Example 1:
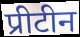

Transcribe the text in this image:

प्रीटीन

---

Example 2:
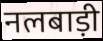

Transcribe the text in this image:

नलबाड़ी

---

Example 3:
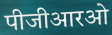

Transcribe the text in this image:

पीजीआरओ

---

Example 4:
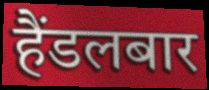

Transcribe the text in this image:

हैंडलबार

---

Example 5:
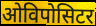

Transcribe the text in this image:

ओविपोसिटर